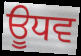
ਊਧਵ